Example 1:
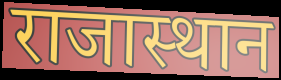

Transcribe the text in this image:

राजास्थान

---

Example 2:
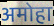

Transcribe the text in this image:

अमोहा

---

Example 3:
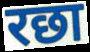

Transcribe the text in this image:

रछा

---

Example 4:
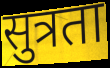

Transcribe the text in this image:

सुत्रता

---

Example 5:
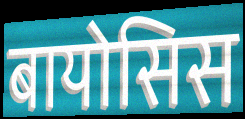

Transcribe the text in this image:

बायोसिस